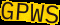
GPWS